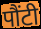
पौंटी